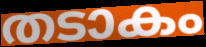
തടാകം